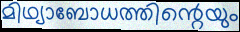
മിഥ്യാബോധത്തിന്റെയും